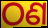
ଠଣ